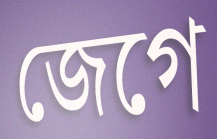
জেগে